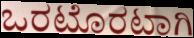
ಒರಟೊರಟಾಗಿ